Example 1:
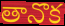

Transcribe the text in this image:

తానొక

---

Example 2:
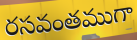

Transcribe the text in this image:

రసవంతముగా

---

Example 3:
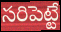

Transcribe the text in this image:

సరిపెట్టే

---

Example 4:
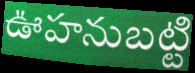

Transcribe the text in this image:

ఊహనుబట్టి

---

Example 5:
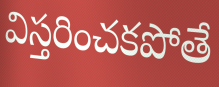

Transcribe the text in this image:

విస్తరించకపోతే